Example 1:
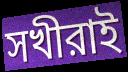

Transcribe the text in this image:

সখীরাই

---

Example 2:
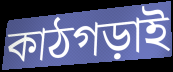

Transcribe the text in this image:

কাঠগড়াই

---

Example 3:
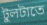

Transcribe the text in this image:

টুলটাতে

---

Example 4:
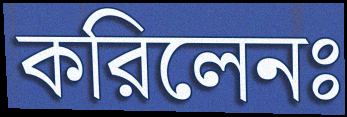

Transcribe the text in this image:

করিলেনঃ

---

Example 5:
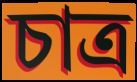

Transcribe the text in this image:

চাত্র